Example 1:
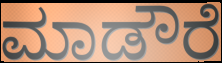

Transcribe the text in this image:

ಮಾಡೌರೆ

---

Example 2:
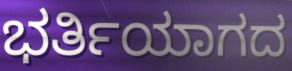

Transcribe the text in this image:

ಭರ್ತಿಯಾಗದ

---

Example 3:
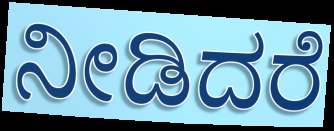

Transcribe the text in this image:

ನೀಡಿದರೆ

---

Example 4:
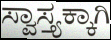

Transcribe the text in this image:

ಸ್ವಾಸ್ತ್ಯಕ್ಕಾಗಿ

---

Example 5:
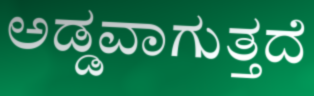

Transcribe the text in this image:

ಅಡ್ಡವಾಗುತ್ತದೆ